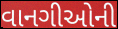
વાનગીઓની